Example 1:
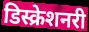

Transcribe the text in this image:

डिस्क्रेशनरी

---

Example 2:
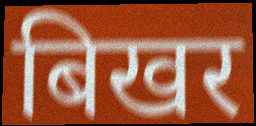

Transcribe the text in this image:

बिखर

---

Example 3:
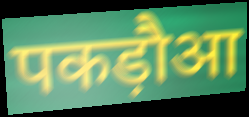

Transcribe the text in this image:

पकड़ौआ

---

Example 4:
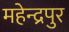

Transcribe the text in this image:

महेन्द्रपुर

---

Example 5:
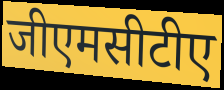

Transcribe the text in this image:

जीएमसीटीए